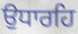
ਉਧਾਰਹਿ